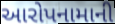
આરોપનામાની